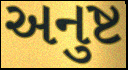
અનુષ્ટ